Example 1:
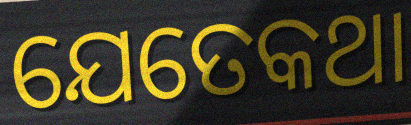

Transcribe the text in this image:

ଯେତେକଥା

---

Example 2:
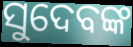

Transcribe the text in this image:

ସୁଦେବଙ୍କ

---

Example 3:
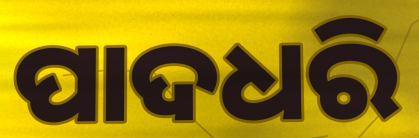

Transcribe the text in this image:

ପାଦଧରି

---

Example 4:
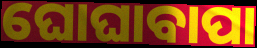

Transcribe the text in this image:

ଘୋଘାବାପା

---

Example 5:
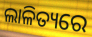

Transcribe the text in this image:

ଲାଳିତ୍ୟରେ